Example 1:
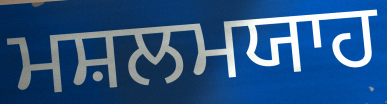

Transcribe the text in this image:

ਮਸ਼ਲਮਯਾਹ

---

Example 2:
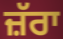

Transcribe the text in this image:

ਜ਼ੱਰਾ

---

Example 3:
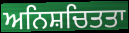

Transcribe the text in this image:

ਅਨਿਸ਼ਚਿਤਤਾ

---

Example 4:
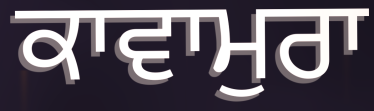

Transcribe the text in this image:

ਕਾਵਾਮੁਰਾ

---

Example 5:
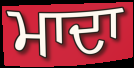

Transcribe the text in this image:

ਮਾਦਾ